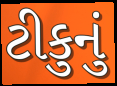
ટીકુનું